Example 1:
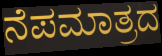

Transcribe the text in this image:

ನೆಪಮಾತ್ರದ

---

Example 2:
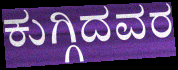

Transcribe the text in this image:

ಕುಗ್ಗಿದವರ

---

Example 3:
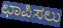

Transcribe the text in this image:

ಛಾಪಿಸಲು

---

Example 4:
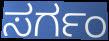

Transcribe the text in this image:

ಸರ್ಗಂ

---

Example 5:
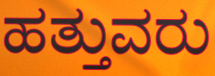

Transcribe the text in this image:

ಹತ್ತುವರು